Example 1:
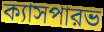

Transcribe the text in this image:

ক্যাসপারভ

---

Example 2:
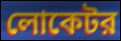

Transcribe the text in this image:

লোকেটর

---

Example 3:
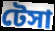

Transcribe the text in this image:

টেসা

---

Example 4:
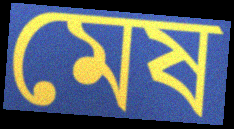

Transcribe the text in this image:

মেষ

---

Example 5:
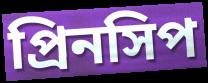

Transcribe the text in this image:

প্রিনসিপ